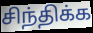
சிந்திக்க